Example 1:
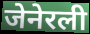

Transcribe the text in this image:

जेनेरली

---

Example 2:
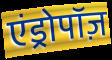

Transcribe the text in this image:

एंड्रोपॉज़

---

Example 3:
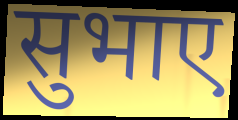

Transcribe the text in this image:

सुभाए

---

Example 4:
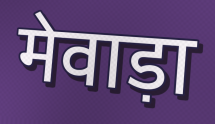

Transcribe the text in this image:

मेवाड़ा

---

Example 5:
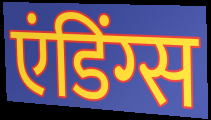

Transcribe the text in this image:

एंडिंग्स